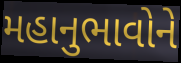
મહાનુભાવોને